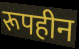
रूपहीन